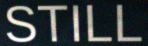
STILL